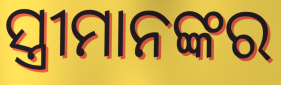
ସ୍ତ୍ରୀମାନଙ୍କର